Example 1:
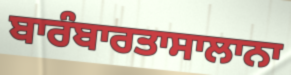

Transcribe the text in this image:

ਬਾਰੰਬਾਰਤਾਸਾਲਾਨਾ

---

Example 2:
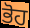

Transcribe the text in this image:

ਭੋਹ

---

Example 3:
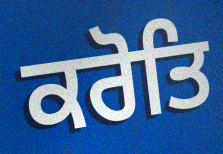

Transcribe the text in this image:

ਕਰੋਤਿ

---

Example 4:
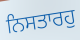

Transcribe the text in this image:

ਨਿਸਤਾਰਹੁ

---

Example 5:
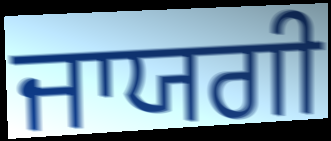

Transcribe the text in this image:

ਜਾਯਗੀ